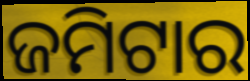
ଜମିଟାର